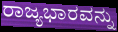
ರಾಜ್ಯಭಾರವನ್ನು